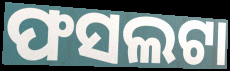
ଫସଲଟା